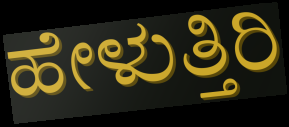
ಹೇಳುತ್ತಿರಿ